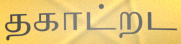
தகாட்றட